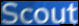
Scout